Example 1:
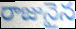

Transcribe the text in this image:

రాజునైన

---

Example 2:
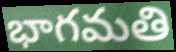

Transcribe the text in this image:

భాగమతి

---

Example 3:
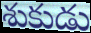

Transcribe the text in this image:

శుకుడు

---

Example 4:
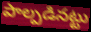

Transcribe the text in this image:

పాల్పడినట్టు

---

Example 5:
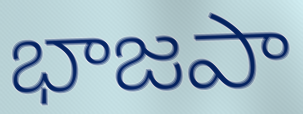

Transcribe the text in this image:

భాజపా